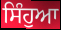
ਸਿੰਹੁਆ